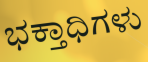
ಭಕ್ತಾಧಿಗಳು